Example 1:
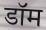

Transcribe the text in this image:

डॉम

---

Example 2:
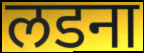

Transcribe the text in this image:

लडना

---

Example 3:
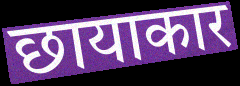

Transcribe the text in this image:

छायाकार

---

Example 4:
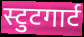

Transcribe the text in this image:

स्टुटगार्ट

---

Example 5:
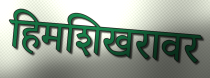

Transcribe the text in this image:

हिमशिखरावर